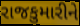
રાજકુમારીને